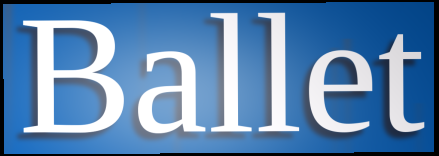
Ballet